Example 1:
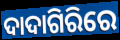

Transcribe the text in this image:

ଦାଦାଗିରିରେ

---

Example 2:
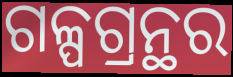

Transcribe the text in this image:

ଗଳ୍ପଗ୍ରନ୍ଥର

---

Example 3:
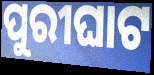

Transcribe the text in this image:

ପୁରୀଘାଟ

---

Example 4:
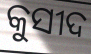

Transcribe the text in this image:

କୁସୀଦ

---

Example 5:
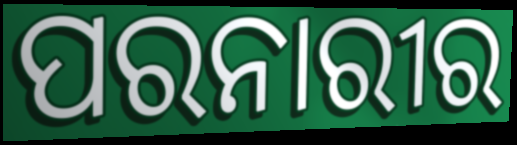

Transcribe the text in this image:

ପରନାରୀର